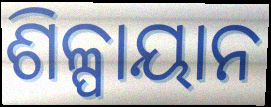
ଶିଳ୍ପାୟାନ